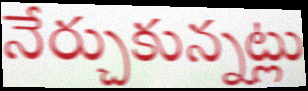
నేర్చుకున్నట్లు